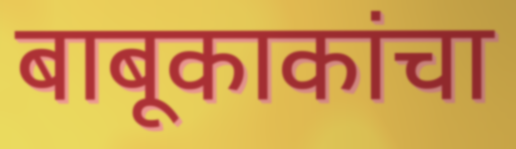
बाबूकाकांचा